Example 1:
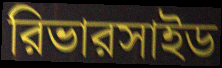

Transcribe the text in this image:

রিভারসাইড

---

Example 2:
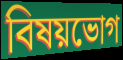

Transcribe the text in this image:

বিষয়ভোগ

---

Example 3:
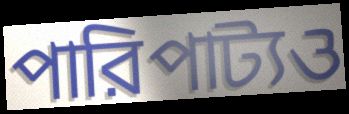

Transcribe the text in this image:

পারিপাট্যও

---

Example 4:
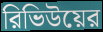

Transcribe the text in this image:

রিভিউয়ের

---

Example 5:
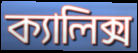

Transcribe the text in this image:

ক্যালিক্স